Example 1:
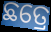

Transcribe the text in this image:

ଛତ୍ରେ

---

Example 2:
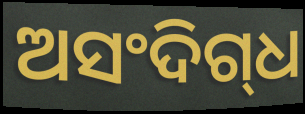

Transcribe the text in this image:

ଅସଂଦିଗ୍‌ଧ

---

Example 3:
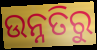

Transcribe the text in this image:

ଉନ୍ନତିରୁ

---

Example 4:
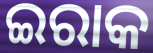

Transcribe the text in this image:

ଇରାକ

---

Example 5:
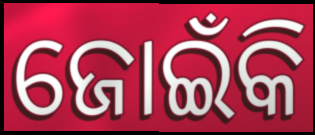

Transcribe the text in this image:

ଜୋଇଁକି